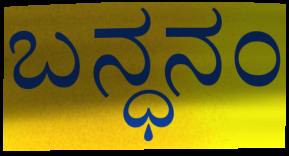
ಬನ್ಧನಂ